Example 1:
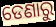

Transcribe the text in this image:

ଡେଣାରୁ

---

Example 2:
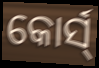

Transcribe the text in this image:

କୋର୍ସ୍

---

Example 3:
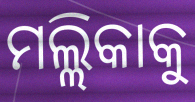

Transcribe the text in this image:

ମଲ୍ଲିକାକୁ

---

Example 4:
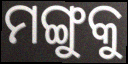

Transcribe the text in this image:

ମଙ୍ଗୁକୁ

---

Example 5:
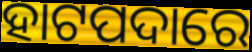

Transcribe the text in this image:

ହାଟପଦାରେ